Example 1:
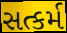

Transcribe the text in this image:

સત્કર્મ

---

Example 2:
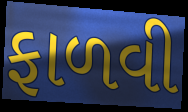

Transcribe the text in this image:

ફાળવી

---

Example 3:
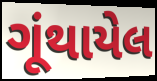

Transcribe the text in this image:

ગૂંથાયેલ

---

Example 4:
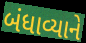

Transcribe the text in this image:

બંધાવ્યાને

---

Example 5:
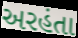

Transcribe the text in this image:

અરહંતા